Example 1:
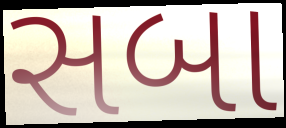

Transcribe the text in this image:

સબા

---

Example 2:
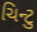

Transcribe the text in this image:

ચિન્ટુ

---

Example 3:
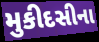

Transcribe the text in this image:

મુકીદસીના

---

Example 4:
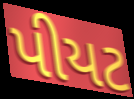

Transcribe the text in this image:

પીયટ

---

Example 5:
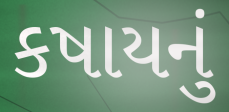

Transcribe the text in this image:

કષાયનું